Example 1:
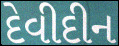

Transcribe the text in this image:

દેવીદીન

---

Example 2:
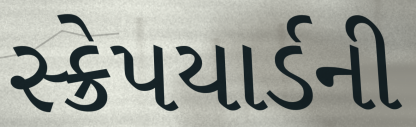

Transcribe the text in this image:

સ્ક્રેપયાર્ડની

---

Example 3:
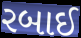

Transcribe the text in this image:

રબાઈ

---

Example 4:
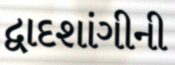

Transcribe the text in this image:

દ્વાદશાંગીની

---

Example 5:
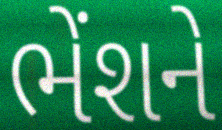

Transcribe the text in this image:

ભેંશને